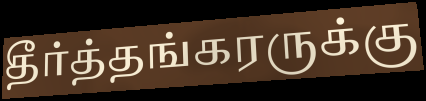
தீர்த்தங்கரருக்கு